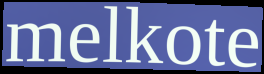
melkote